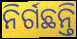
ନିର୍ଗଛନ୍ତି